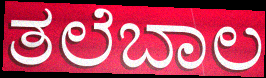
ತಲೆಬಾಲ